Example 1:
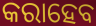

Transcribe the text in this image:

କରାହେବ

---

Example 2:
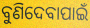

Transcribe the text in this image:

ବୁଣିଦେବାପାଇଁ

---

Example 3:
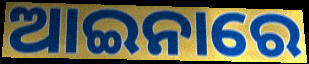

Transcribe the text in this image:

ଆଇନାରେ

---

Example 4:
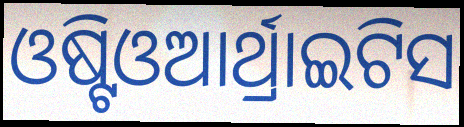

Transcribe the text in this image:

ଓଷ୍ଟିଓଆର୍ଥ୍ରାଇଟିସ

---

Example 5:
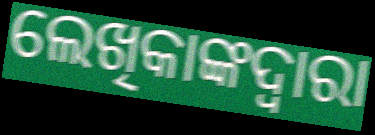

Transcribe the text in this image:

ଲେଖିକାଙ୍କଦ୍ୱାରା